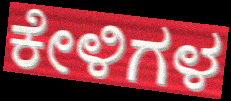
ಕೇಳಿಗಳ